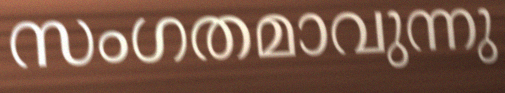
സംഗതമാവുന്നു